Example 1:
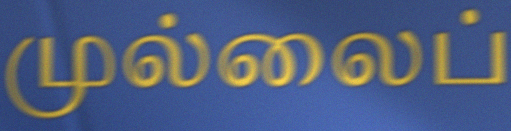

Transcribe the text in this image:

முல்லைப்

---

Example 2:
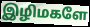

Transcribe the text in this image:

இழிமகளே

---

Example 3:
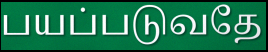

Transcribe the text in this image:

பயப்படுவதே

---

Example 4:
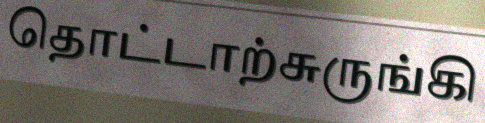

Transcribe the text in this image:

தொட்டாற்சுருங்கி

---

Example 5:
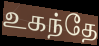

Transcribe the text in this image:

உகந்தே